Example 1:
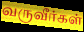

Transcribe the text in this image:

வருவீர்கள்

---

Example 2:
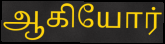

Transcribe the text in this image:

ஆகியோர்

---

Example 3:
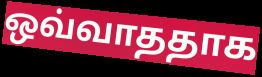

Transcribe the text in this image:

ஒவ்வாததாக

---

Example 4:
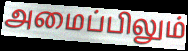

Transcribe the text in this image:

அமைப்பிலும்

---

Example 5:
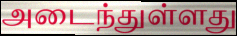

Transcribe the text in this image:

அடைந்துள்ளது